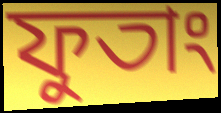
ফুতাং